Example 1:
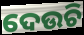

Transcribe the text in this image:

ଦେଉଚି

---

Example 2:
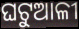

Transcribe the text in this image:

ଘଟୁଆଳୀ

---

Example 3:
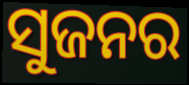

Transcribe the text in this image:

ସୁଜନର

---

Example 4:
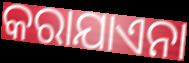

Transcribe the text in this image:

କରାଯାଏନା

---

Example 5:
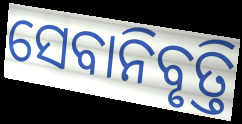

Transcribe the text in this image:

ସେବାନିବୃତ୍ତି